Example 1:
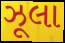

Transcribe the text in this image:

ઝૂલા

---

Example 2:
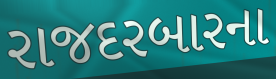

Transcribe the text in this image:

રાજદરબારના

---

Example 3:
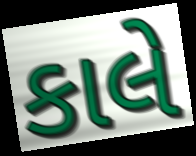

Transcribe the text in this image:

કાલે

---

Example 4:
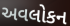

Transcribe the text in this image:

અવલોકન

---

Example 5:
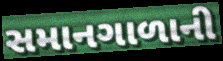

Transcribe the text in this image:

સમાનગાળાની